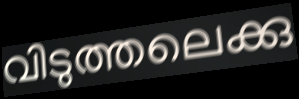
വിടുത്തലെക്കു